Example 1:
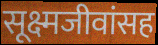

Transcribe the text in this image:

सूक्ष्मजीवांसह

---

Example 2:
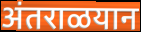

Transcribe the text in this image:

अंतराळयान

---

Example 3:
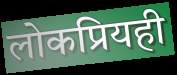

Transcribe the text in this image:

लोकप्रियही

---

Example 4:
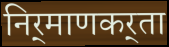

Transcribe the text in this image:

निर्माणकर्ता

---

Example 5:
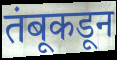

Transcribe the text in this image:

तंबूकडून